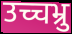
उच्चभ्रु